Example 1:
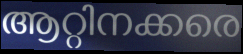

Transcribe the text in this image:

ആറ്റിനക്കരെ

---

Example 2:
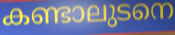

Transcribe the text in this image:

കണ്ടാലുടനെ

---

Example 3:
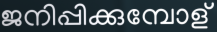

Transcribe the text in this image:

ജനിപ്പിക്കുമ്പോള്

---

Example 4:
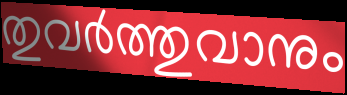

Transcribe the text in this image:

തുവർത്തുവാനും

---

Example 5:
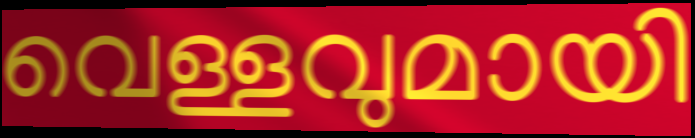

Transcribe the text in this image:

വെള്ളവുമായി